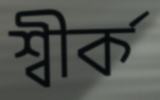
শ্বীৰ্ক